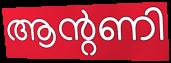
ആന്റണി